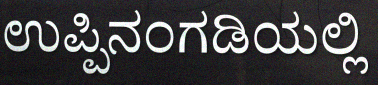
ಉಪ್ಪಿನಂಗಡಿಯಲ್ಲಿ